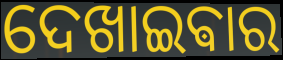
ଦେଖାଇଵାର